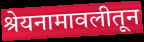
श्रेयनामावलीतून